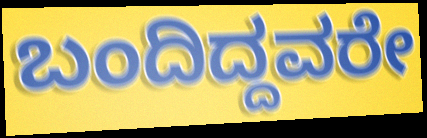
ಬಂದಿದ್ದವರೇ